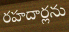
రహదార్లను